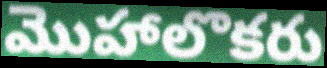
మొహాలొకరు